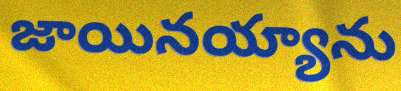
జాయినయ్యాను